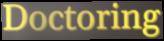
Doctoring